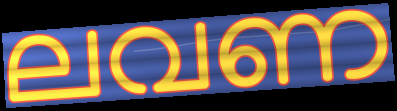
ലവണ